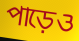
পাড়েও